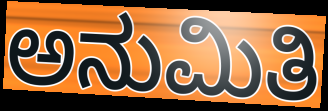
ಅನುಮಿತಿ